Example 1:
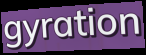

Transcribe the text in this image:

gyration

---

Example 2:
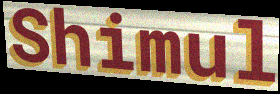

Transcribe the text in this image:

Shimul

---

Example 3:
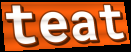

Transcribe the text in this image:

teat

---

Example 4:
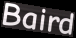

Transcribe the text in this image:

Baird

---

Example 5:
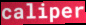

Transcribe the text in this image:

caliper